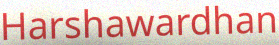
Harshawardhan